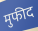
मुफीद